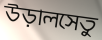
উড়ালসেতু